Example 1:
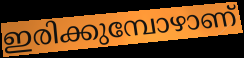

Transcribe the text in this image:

ഇരിക്കുമ്പോഴാണ്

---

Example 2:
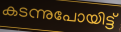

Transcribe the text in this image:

കടന്നുപോയിട്ട്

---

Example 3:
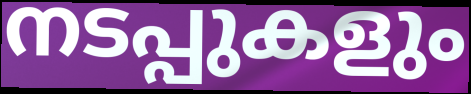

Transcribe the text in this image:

നടപ്പുകളും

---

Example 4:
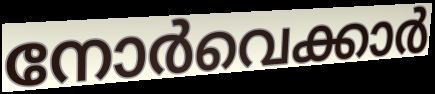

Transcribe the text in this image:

നോർവെക്കാർ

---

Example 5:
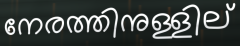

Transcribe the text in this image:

നേരത്തിനുള്ളില്